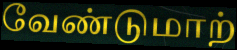
வேண்டுமாற்